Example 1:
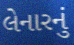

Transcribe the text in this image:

લેનારનું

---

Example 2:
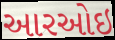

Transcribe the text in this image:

આરઓઇ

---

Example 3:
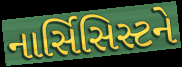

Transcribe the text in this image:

નાર્સિસિસ્ટને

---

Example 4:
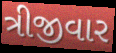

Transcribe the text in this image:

ત્રીજીવાર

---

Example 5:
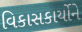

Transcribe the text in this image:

વિકાસકાર્યોને